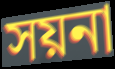
সয়না